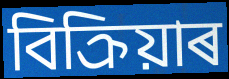
বিক্ৰিয়াৰ